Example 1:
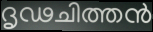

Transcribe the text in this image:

ദൃഢചിത്തൻ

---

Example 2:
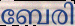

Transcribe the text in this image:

ബേരി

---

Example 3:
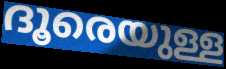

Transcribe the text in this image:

ദൂരെയുള്ള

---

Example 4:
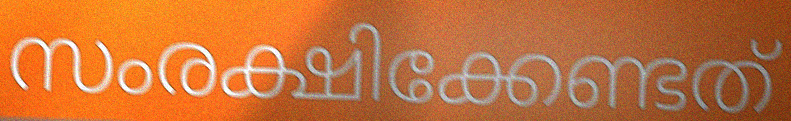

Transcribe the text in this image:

സംരക്ഷിക്കേണ്ടത്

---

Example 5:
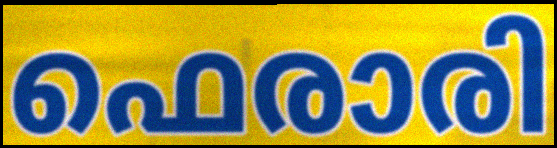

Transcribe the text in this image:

ഫെരാരി